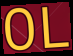
OL